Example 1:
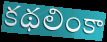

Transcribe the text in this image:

కథలింకా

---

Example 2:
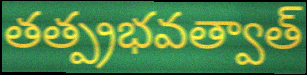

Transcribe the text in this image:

తత్ప్రభవత్వాత్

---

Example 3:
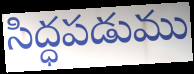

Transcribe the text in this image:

సిద్ధపడుము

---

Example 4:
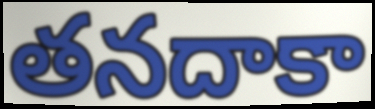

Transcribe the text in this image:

తనదాకా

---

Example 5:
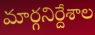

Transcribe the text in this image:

మార్గనిర్దేశాల